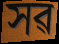
সৱ